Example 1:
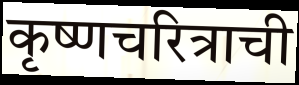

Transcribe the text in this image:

कृष्णचरित्राची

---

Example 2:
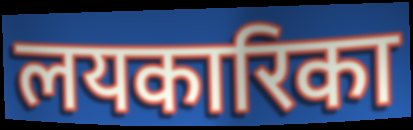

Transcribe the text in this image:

लयकारिका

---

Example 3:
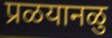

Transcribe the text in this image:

प्रळयानळु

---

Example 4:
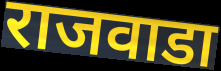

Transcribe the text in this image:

राजवाडा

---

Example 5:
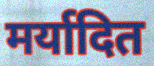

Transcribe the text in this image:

मर्यादित